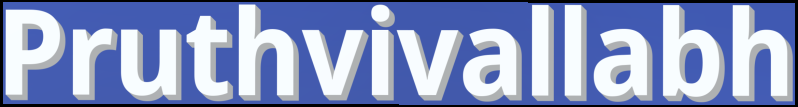
Pruthvivallabh